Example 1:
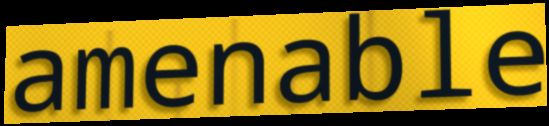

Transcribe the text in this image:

amenable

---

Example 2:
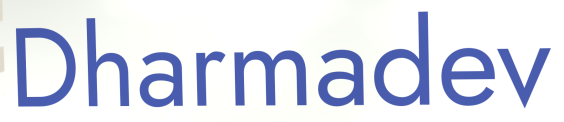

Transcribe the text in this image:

Dharmadev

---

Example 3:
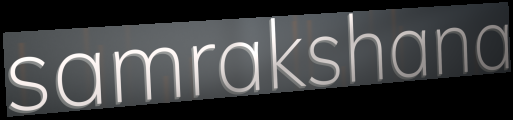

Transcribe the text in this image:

samrakshana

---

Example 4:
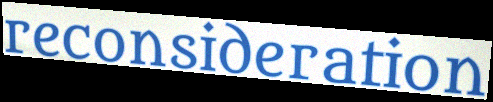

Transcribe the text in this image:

reconsideration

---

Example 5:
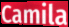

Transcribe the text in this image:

Camila